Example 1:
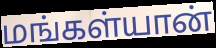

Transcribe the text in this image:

மங்கள்யான்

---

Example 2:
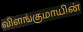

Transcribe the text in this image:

விளங்குமாயின்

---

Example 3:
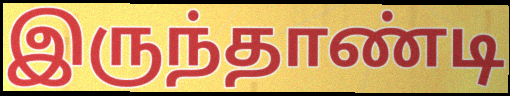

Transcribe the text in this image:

இருந்தாண்டி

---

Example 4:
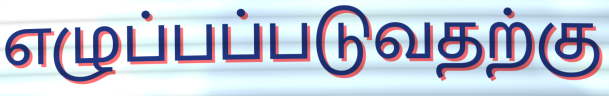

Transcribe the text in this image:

எழுப்பப்படுவதற்கு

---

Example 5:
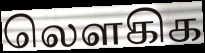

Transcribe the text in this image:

லௌகிக